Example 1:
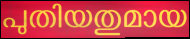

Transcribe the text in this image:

പുതിയതുമായ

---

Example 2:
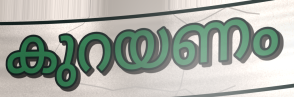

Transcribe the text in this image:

കുറയണം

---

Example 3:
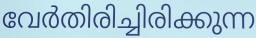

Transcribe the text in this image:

വേർതിരിച്ചിരിക്കുന്ന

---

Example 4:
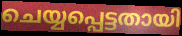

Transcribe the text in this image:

ചെയ്യപ്പെട്ടതായി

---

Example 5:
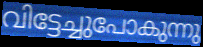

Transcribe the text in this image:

വിട്ടേച്ചുപോകുന്നു